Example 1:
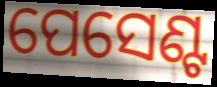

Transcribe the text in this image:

ପେସେଣ୍ଟ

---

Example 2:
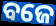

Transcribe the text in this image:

ବଜେ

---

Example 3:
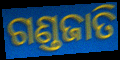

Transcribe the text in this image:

ଗଣ୍ଡଜାତି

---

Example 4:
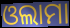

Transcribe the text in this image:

ଓଲାମା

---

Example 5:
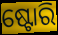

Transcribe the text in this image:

ଷ୍ଟୋରି